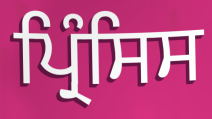
ਪ੍ਰਿੰਸਿਸ